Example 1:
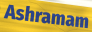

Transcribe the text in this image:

Ashramam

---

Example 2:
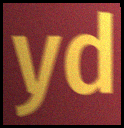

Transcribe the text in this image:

yd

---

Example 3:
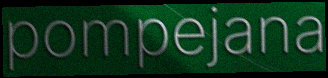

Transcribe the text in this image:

pompejana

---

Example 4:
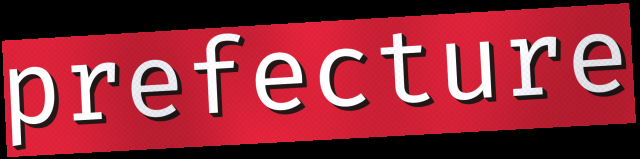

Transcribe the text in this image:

prefecture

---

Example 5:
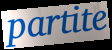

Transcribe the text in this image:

partite